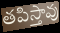
తపిస్తావు